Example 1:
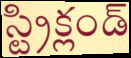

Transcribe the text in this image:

స్ట్రిక్లండ్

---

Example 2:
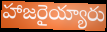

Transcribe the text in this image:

హాజరైయ్యారు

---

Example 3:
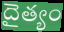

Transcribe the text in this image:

దైత్యం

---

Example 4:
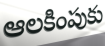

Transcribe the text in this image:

ఆలకింపుకు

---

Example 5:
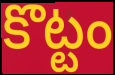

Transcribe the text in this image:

కొట్టం